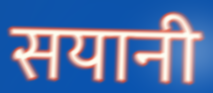
सयानी